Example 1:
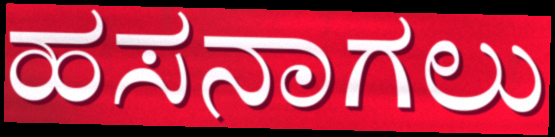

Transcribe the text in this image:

ಹಸನಾಗಲು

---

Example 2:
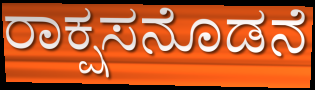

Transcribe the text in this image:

ರಾಕ್ಷಸನೊಡನೆ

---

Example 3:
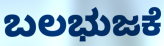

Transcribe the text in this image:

ಬಲಭುಜಕೆ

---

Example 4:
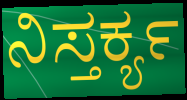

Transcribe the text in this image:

ನಿಸ್ತರ್ಕ್ಯ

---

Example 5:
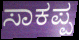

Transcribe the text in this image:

ಸಾಕಪ್ಪ